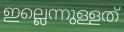
ഇല്ലെന്നുള്ളത്